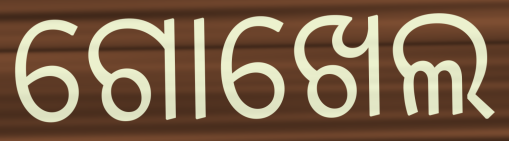
ଗୋଖେଲ